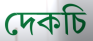
দেকচি